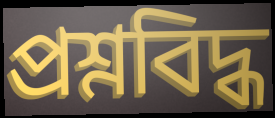
প্রশ্নবিদ্ধ